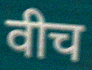
वीच